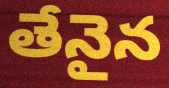
తేనైన